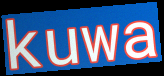
kuwa